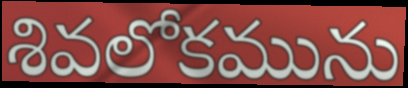
శివలోకమును